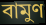
বামুণ